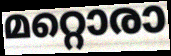
മറ്റൊരാ